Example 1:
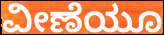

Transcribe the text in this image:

ವೀಣೆಯೂ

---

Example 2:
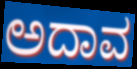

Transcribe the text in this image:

ಅದಾವ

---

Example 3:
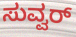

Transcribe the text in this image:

ಸುವ್ವರ್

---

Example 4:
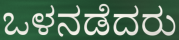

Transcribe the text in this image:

ಒಳನಡೆದರು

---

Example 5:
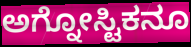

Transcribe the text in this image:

ಅಗ್ನೋಸ್ಟಿಕನೂ